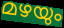
മഴയും